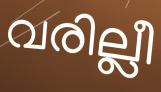
വരില്ലീ